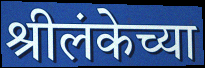
श्रीलंकेच्या